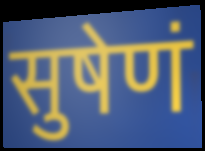
सुषेणं